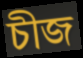
চীজ